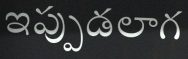
ఇప్పుడలాగ